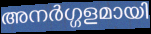
അനർഗ്ഗളമായി